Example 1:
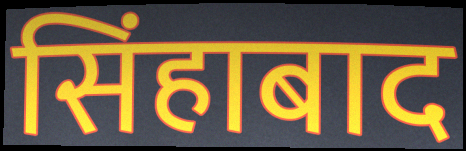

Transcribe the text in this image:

सिंहाबाद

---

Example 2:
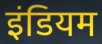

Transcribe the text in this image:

इंडियम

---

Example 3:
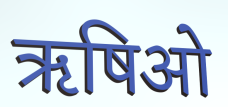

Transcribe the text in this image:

ऋषिओ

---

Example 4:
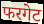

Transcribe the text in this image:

फरगेट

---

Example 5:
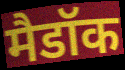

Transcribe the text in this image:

मैडॉक